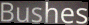
Bushes